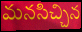
మనసిచ్చిన